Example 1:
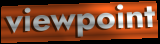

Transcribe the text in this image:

viewpoint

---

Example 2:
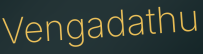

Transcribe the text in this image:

Vengadathu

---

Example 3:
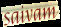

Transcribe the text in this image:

saivam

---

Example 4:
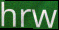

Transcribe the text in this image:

hrw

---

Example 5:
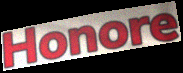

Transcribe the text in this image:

Honore